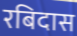
रबिदास